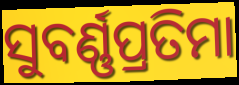
ସୁବର୍ଣ୍ଣପ୍ରତିମା